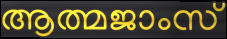
ആത്മജാംസ്